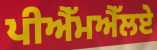
ਪੀਐੱਮਐੱਲਏ